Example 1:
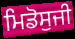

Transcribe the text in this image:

ਮਿਡੋਸੁਜੀ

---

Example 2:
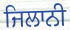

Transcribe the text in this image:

ਜਿਲਾਨੀ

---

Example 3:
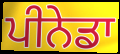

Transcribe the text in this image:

ਪੀਨੇਡਾ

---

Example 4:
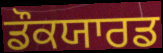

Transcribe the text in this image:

ਡੌਕਯਾਰਡ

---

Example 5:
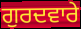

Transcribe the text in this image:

ਗੁਰਦਵਾਰੇ